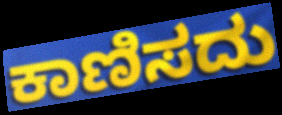
ಕಾಣಿಸದು